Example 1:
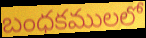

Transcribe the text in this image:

బంధకములలో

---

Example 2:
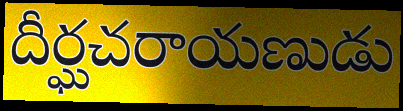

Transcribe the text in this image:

దీర్ఘచరాయణుడు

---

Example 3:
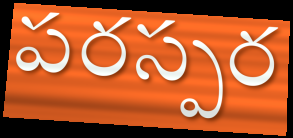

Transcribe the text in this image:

పరస్పర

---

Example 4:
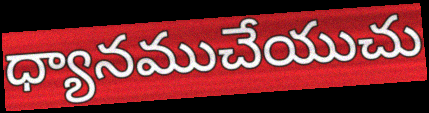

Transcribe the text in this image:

ధ్యానముచేయుచు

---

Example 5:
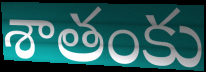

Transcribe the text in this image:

శాతంకు